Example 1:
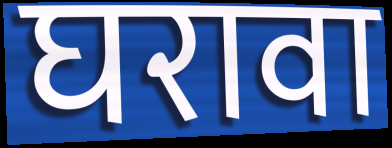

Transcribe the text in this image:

घरावा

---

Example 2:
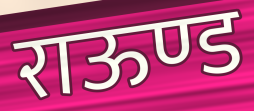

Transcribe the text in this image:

राऊण्ड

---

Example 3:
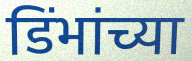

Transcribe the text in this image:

डिंभांच्या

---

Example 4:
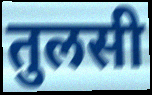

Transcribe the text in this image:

तुलसी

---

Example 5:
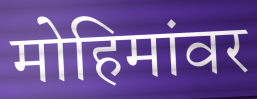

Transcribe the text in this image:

मोहिमांवर